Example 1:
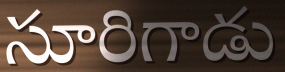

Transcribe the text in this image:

సూరిగాడు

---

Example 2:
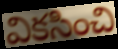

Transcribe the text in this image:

వికసించి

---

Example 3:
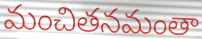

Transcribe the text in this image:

మంచితనమంతా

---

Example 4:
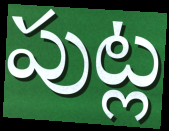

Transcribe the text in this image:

పుట్ల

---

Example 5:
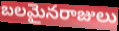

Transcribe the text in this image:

బలమైనరాజులు